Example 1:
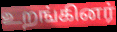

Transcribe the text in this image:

உறங்கினர்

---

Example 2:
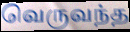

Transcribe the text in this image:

வெருவந்த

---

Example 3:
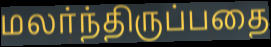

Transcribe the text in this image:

மலர்ந்திருப்பதை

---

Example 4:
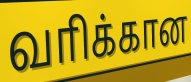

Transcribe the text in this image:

வரிக்கான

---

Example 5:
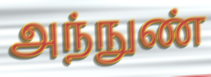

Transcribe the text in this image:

அந்நுண்